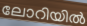
ലോറിയിൽ